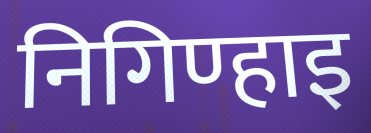
निगिण्हाइ